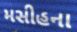
મસીહના